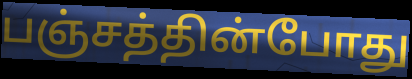
பஞ்சத்தின்போது